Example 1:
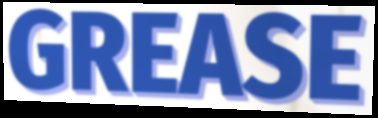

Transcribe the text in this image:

GREASE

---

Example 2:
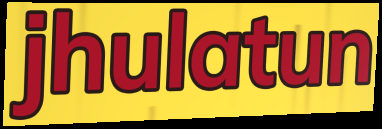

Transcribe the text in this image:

jhulatun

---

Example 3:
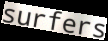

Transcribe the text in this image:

surfers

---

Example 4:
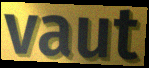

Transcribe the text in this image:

vaut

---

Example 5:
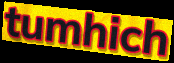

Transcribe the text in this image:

tumhich